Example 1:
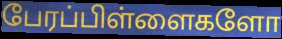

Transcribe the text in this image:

பேரப்பிள்ளைகளோ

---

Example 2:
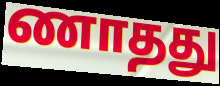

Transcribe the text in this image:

ணாதது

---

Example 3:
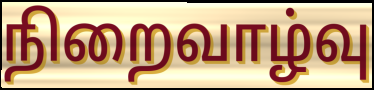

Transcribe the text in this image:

நிறைவாழ்வு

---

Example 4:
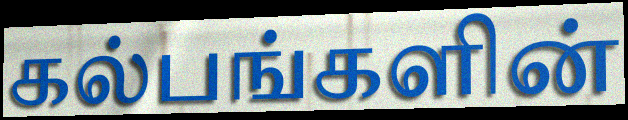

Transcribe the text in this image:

கல்பங்களின்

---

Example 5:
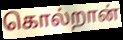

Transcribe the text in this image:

கொல்றான்